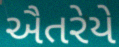
ઐતરેયે